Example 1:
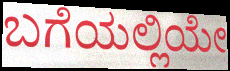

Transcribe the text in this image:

ಬಗೆಯಲ್ಲಿಯೇ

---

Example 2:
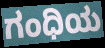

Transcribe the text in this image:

ಗಂಧಿಯ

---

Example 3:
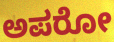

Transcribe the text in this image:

ಅಪರೋ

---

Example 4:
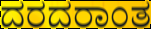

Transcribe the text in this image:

ದರದರಾಂತ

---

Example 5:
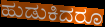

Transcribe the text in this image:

ಹುಡುಕಿದರೂ